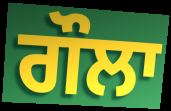
ਗੌਲਾ